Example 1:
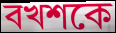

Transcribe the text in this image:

বখশকে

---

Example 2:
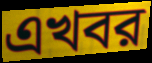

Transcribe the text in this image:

এখবর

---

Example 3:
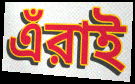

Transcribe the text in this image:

এঁরাই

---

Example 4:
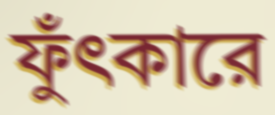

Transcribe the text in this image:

ফুঁৎকারে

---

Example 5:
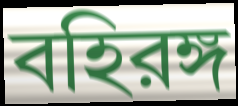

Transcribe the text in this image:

বহিরঙ্গ